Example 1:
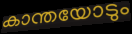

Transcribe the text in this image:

കാന്തയോടും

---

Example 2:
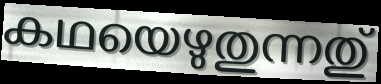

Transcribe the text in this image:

കഥയെഴുതുന്നതു്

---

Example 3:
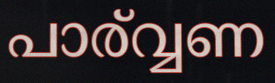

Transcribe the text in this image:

പാര്വ്വണ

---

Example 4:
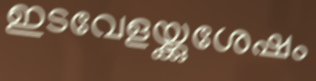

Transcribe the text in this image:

ഇടവേളയ്ക്കുശേഷം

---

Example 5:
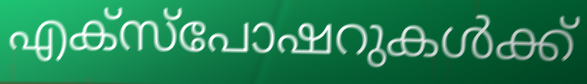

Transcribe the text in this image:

എക്സ്പോഷറുകൾക്ക്